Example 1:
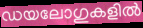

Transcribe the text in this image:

ഡയലോഗുകളിൽ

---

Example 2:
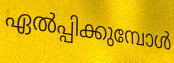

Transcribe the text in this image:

ഏൽപ്പിക്കുമ്പോൾ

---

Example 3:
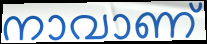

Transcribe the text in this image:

നാവാണ്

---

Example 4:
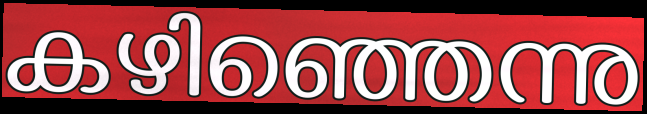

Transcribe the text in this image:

കഴിഞ്ഞെന്നു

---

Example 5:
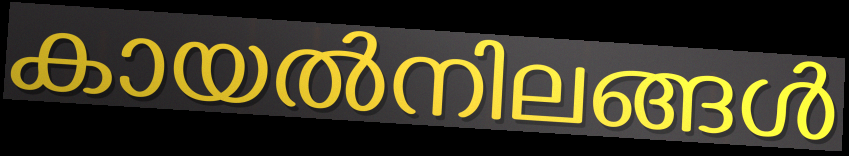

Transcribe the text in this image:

കായൽനിലങ്ങൾ